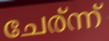
ചേര്ന്ന്